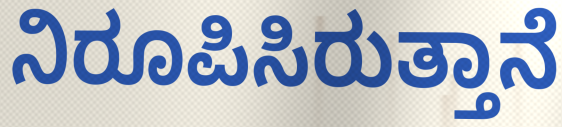
ನಿರೂಪಿಸಿರುತ್ತಾನೆ